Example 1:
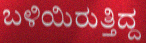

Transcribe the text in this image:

ಬಳಿಯಿರುತ್ತಿದ್ದ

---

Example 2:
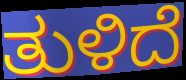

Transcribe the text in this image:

ತುಳಿದೆ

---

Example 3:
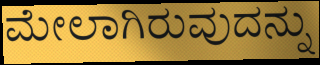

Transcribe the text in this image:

ಮೇಲಾಗಿರುವುದನ್ನು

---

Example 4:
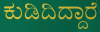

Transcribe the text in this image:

ಕುಡಿದಿದ್ದಾರೆ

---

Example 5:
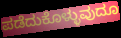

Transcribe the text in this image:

ಪಡೆದುಕೊಳ್ಳುವುದೂ